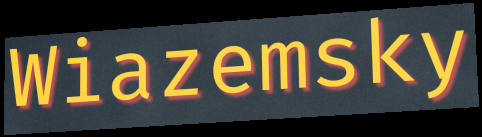
Wiazemsky